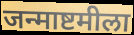
जन्माष्टमीला